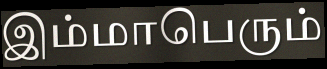
இம்மாபெரும்